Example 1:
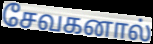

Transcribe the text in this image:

சேவகனால்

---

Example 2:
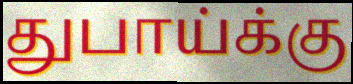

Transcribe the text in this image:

துபாய்க்கு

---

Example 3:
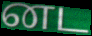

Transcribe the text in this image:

னட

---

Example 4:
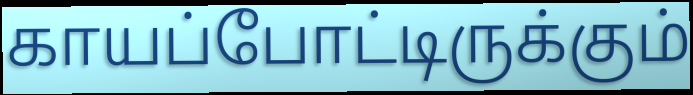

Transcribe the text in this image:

காயப்போட்டிருக்கும்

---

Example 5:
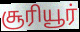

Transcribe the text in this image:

சூரியூர்